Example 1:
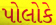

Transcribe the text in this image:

પોલોકે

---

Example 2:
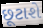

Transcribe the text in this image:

છૂટાશે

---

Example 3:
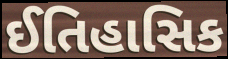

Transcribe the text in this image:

ઈતિહાસિક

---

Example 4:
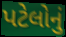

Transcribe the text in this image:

પટેલોનું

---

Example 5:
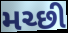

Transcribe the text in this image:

મચ્છી